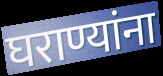
घराण्यांना